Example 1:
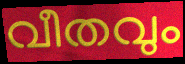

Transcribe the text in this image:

വീതവും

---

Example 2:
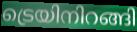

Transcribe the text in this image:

ട്രെയിനിറങ്ങി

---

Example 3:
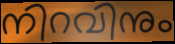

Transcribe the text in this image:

നിറവിനും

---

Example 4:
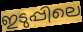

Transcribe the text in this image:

ഇടുപ്പിലെ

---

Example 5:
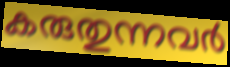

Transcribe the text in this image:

കരുതുന്നവർ